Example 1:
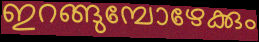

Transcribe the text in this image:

ഇറങ്ങുമ്പോഴേക്കും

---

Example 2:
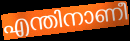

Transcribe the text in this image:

എന്തിനാണീ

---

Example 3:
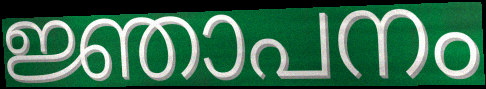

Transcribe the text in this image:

ജ്ഞാപനം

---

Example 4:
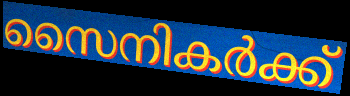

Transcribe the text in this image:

സൈനികർക്ക്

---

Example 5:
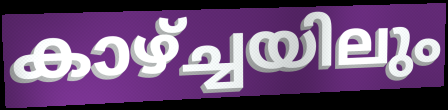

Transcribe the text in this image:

കാഴ്ച്ചയിലും